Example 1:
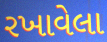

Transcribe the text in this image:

રખાવેલા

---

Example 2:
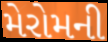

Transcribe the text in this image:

મેરોમની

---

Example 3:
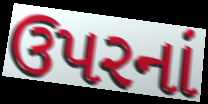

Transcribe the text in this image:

ઉપરનાં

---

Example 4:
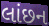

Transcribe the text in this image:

લાંછન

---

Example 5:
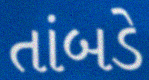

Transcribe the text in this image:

તાંબડે